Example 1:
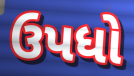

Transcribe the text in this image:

ઉપધો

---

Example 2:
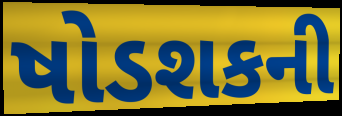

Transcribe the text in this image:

ષોડશકની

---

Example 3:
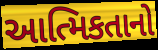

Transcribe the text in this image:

આત્મિકતાનો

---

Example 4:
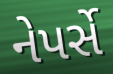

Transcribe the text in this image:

નેપર્સે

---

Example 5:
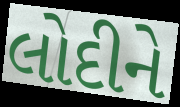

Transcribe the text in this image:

લોદીને